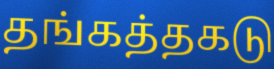
தங்கத்தகடு